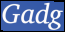
Gadg